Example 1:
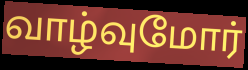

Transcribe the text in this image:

வாழ்வுமோர்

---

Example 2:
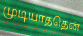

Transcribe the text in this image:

முடியாததென்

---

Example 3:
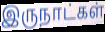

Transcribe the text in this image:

இருநாட்கள்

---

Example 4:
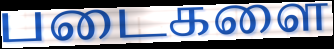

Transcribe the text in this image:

படைகளை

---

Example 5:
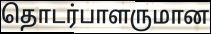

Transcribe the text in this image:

தொடர்பாளருமான